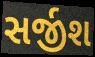
સર્જીશ